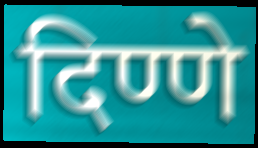
दिण्णे